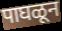
पाघळून